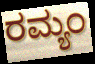
ರಮ್ಯಂ